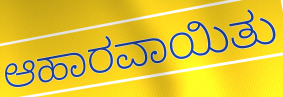
ಆಹಾರವಾಯಿತು